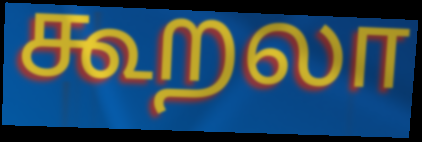
கூறலா